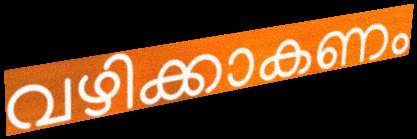
വഴിക്കാകണം